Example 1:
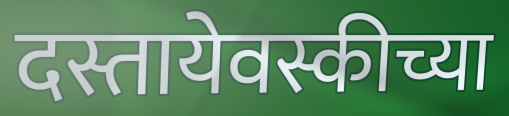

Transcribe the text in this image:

दस्तायेवस्कीच्या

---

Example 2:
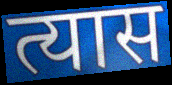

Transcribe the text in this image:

त्‍यास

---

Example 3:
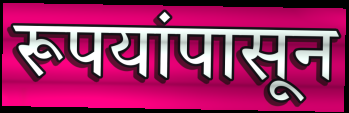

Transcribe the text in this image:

रूपयांपासून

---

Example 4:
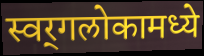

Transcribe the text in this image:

स्वर्गलोकामध्ये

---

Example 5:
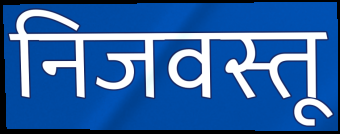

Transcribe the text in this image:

निजवस्तू